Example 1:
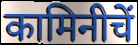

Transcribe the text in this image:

कामिनीचें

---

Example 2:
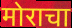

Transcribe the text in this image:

मोराचा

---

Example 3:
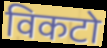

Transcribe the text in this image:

विकटो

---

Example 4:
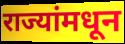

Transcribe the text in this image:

राज्यांमधून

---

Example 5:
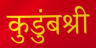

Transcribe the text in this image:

कुडुंबश्री